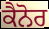
ਕੈਨੋਰ